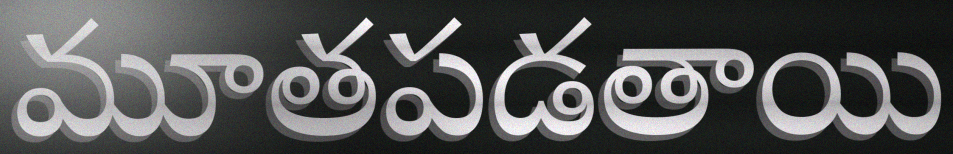
మూతపడతాయి